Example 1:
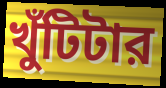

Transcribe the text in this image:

খুঁটিটার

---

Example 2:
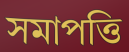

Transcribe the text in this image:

সমাপত্তি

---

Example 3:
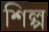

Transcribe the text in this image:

শিল্প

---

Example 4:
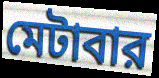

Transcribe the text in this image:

মেটাবার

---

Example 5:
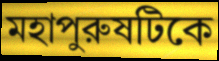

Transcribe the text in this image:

মহাপুরুষটিকে